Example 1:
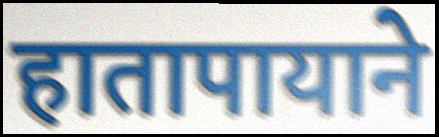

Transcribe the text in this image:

हातापायाने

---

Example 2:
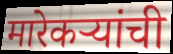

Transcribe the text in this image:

मारेकऱ्यांची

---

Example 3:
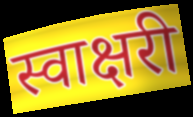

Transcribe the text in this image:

स्वाक्षरी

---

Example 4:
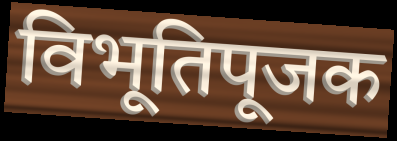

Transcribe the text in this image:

विभूतिपूजक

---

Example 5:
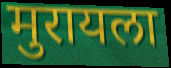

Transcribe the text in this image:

मुरायला